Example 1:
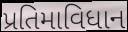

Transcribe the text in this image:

પ્રતિમાવિધાન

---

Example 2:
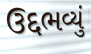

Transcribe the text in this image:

ઉદ્દભવ્યું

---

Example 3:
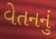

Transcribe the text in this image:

વેતનનું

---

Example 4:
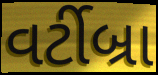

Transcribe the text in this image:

વર્ટીબ્રા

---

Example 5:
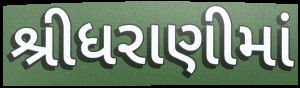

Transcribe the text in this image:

શ્રીધરાણીમાં